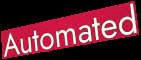
Automated